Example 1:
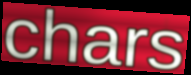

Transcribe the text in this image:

chars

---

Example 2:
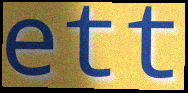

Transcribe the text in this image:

ett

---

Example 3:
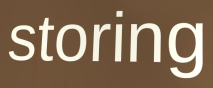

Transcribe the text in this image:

storing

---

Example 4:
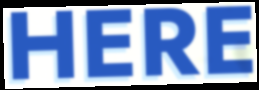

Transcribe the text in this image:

HERE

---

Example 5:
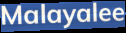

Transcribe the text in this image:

Malayalee